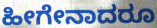
ಹೀಗೇನಾದರೂ